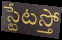
స్టేటస్తో